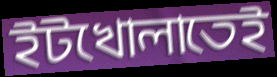
ইটখোলাতেই